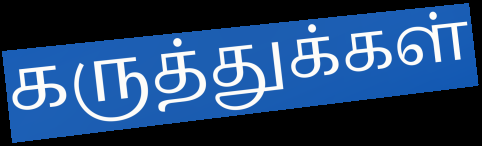
கருத்துக்கள்